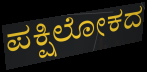
ಪಕ್ಷಿಲೋಕದ